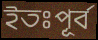
ইতঃপূর্ব